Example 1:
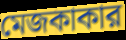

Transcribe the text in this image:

মেজকাকার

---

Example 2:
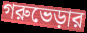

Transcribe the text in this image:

গরুভেড়ার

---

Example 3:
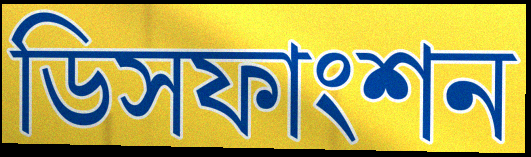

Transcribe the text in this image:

ডিসফাংশন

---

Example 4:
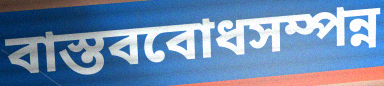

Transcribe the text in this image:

বাস্তববোধসম্পন্ন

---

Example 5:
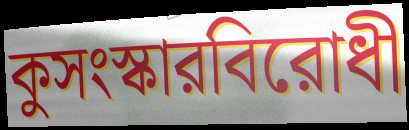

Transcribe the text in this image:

কুসংস্কারবিরোধী